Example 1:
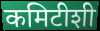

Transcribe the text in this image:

कमिटीशी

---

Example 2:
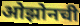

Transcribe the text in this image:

ओझोनची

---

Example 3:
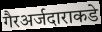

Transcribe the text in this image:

गैरअर्जदाराकडे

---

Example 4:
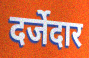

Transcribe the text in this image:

दर्जेदार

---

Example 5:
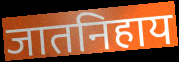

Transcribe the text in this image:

जातनिहाय